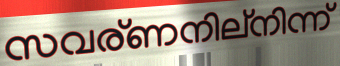
സവര്ണനില്നിന്ന്